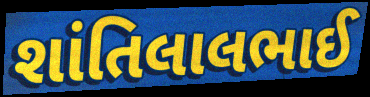
શાંતિલાલભાઈ